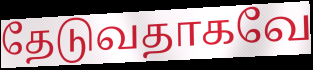
தேடுவதாகவே